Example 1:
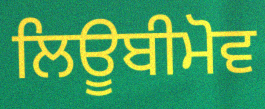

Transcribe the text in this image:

ਲਿਊਬੀਮੋਵ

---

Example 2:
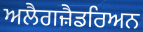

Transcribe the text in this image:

ਅਲੈਗਜ਼ੈਡਰਿਅਨ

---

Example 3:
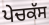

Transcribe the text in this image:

ਪੇਚਕੱਸ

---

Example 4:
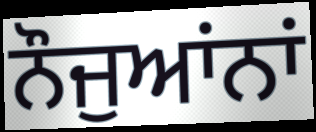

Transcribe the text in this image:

ਨੌਜੁਆਂਨਾਂ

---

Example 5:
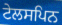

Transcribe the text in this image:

ਟੇਲਸਪਿਨ